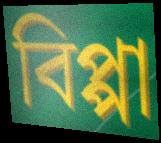
বিপ্পা